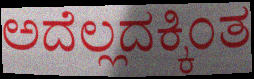
ಅದೆಲ್ಲದಕ್ಕಿಂತ